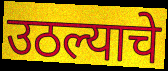
उठल्याचे